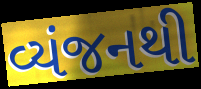
વ્યંજનથી